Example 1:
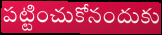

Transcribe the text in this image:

పట్టించుకోనందుకు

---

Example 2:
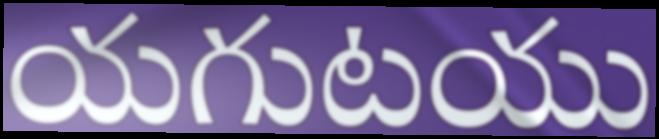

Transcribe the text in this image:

యగుటయు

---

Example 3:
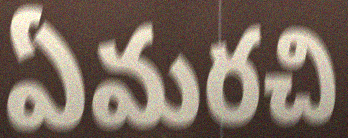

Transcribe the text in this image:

ఏమరచి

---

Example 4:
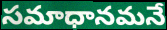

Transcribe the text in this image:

సమాధానమనే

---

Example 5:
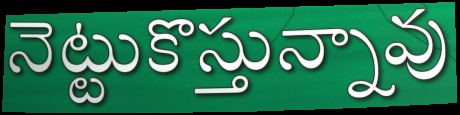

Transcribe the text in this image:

నెట్టుకొస్తున్నావు